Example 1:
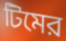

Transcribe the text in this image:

টিমের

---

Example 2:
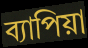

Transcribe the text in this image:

ব্যাপিয়া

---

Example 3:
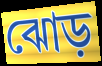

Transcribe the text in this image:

ঝোড়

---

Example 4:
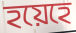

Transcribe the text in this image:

হয়েহে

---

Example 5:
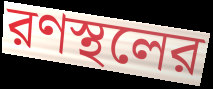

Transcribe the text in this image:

রণস্থলের